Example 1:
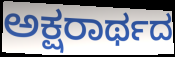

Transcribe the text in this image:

ಅಕ್ಷರಾರ್ಥದ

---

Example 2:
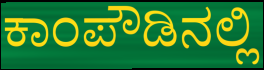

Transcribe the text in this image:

ಕಾಂಪೌಡಿನಲ್ಲಿ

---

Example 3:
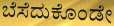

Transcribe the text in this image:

ಬೆಸೆದುಕೊಂಡೇ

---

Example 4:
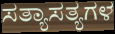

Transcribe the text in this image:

ಸತ್ಯಾಸತ್ಯಗಳ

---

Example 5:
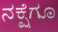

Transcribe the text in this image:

ನಕ್ಷೆಗೂ